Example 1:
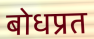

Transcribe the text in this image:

बोधप्रत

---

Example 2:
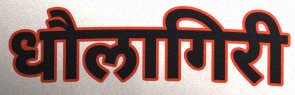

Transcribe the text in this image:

धौलागिरी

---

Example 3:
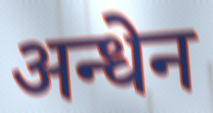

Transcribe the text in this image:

अन्धेन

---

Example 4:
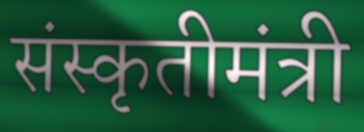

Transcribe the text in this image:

संस्कृतीमंत्री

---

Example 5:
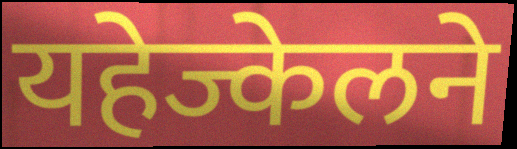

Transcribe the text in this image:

यहेज्केलने